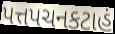
પત્તપચનકટાહં